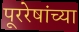
पूररेषांच्या